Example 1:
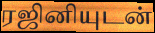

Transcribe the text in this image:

ரஜினியுடன்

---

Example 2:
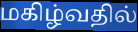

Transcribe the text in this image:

மகிழ்வதில்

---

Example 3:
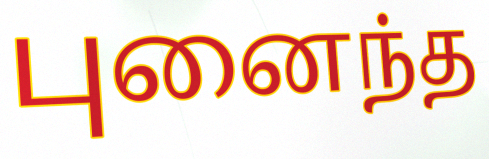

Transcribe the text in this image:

புனைந்த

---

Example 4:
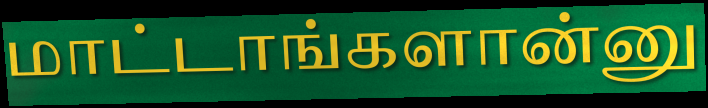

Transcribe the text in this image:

மாட்டாங்களான்னு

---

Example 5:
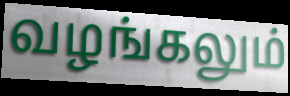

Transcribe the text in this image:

வழங்கலும்